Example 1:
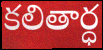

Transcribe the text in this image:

కలితార్ధ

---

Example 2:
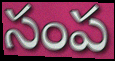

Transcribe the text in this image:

సంప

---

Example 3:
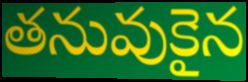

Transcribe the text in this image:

తనువుకైన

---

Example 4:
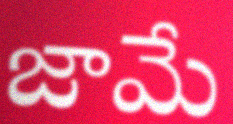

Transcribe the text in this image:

జామే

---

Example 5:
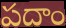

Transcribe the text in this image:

పదాం